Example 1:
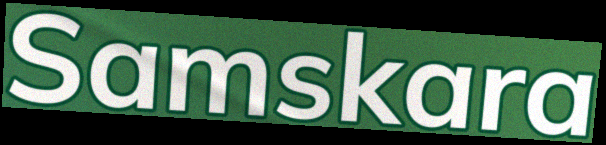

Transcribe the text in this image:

Samskara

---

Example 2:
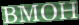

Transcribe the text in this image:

BMOH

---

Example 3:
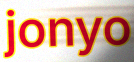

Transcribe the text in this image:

jonyo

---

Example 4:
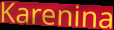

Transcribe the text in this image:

Karenina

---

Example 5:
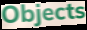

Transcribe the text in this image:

Objects